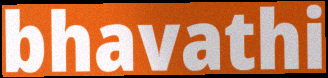
bhavathi